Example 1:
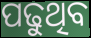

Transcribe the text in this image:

ପଢୁଥିବ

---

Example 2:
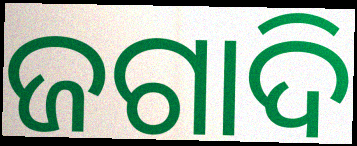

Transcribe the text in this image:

ଜଗାଦି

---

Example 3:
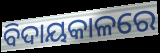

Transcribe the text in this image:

ବିଦାୟକାଳରେ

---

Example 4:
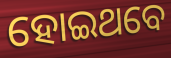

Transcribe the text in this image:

ହୋଇଥବେ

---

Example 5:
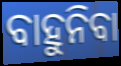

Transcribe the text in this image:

ବାହୁନିବା